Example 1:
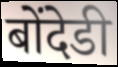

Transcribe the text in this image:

बोंदेडी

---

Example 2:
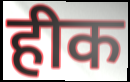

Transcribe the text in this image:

हीक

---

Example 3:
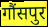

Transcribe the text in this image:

गौंसपुर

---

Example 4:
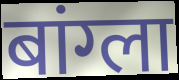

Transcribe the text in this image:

बांग्‍ला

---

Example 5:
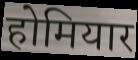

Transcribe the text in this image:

होमियार